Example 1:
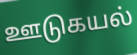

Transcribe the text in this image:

ஊடுகயல்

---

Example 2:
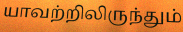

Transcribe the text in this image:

யாவற்றிலிருந்தும்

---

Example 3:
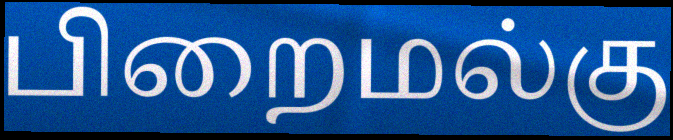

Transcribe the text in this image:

பிறைமல்கு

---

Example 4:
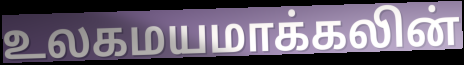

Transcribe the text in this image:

உலகமயமாக்கலின்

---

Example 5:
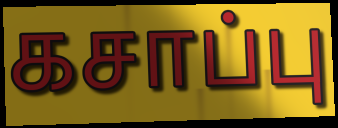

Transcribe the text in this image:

கசாப்பு